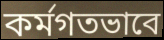
কর্মগতভাবে